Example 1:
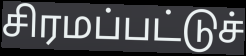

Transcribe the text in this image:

சிரமப்பட்டுச்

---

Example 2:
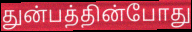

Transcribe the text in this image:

துன்பத்தின்போது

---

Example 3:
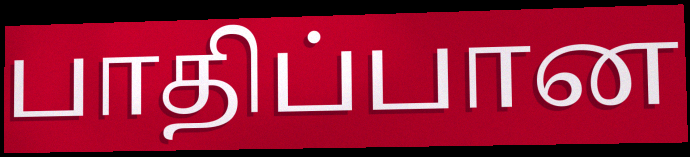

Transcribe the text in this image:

பாதிப்பான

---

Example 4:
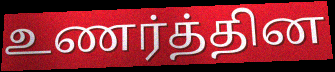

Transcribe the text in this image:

உணர்த்தின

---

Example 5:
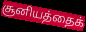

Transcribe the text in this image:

சூனியத்தைக்